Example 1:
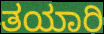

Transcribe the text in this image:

ತಯಾರಿ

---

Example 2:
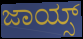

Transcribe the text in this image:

ಜಾಯ್ಸ್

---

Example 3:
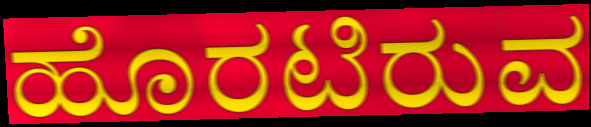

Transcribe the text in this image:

ಹೊರಟಿರುವ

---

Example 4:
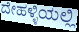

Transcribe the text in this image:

ದೇಹಳ್ಳಿಯಲ್ಲಿ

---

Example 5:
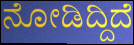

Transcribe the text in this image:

ನೋಡಿದ್ದಿದೆ